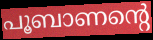
പൂബാണന്റെ